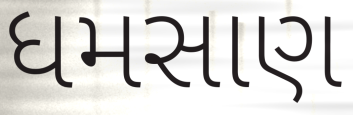
ધમસાણ